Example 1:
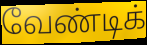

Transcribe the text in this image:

வேண்டிக்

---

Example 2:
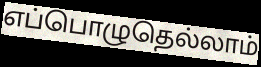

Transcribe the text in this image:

எப்பொழுதெல்லாம்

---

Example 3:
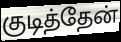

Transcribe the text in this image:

குடித்தேன்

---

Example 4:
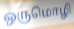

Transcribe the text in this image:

ஒருமொழி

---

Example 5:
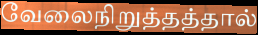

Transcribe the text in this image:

வேலைநிறுத்தத்தால்